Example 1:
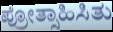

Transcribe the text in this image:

ಪ್ರೋತ್ಸಾಹಿಸಿತು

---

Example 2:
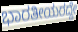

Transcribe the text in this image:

ಭಾರತೀಯರದ್ದೇ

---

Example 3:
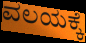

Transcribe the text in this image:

ವಲಯಕ್ಕೆ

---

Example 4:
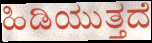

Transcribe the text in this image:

ಹಿಡಿಯುತ್ತದೆ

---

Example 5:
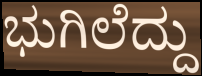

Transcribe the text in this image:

ಭುಗಿಲೆದ್ದು